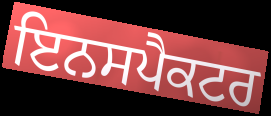
ਇਨਸਪੈਕਟਰ